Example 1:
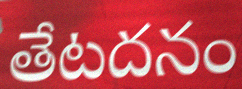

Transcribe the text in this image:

తేటదనం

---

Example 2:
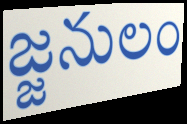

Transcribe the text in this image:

జ్జనులం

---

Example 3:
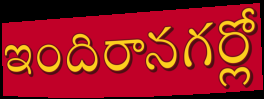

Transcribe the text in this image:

ఇందిరానగర్లో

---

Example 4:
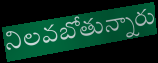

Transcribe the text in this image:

నిలవబోతున్నారు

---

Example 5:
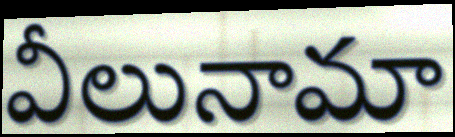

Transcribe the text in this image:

వీలునామా